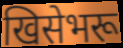
खिसेभरू